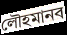
লৌহমানব